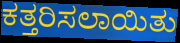
ಕತ್ತರಿಸಲಾಯಿತು